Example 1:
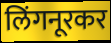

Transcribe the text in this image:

लिंगनूरकर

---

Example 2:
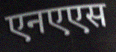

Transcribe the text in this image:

एनएएस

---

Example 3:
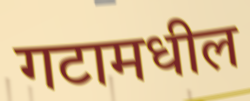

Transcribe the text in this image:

गटामधील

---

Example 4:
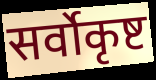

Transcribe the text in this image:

सर्वोकृष्ट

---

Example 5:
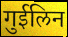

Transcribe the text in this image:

गुईलिन